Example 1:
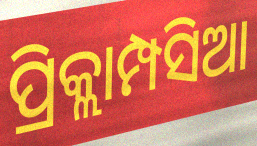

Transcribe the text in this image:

ପ୍ରିକ୍ଲାମ୍ପସିଆ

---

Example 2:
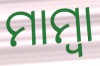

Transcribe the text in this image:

ମାମ୍ଵା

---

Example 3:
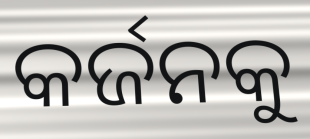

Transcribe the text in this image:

କର୍ଜନକୁ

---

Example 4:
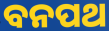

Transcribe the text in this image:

ବନପଥ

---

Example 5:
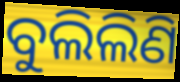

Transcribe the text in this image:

ବୁଲିଲିଣି